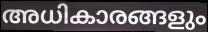
അധികാരങ്ങളും